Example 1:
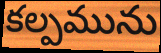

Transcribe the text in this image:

కల్పమును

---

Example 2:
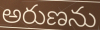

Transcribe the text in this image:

అరుణను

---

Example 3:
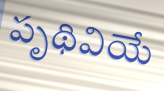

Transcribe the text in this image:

పృథివియే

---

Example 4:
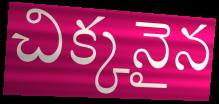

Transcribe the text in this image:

చిక్కనైన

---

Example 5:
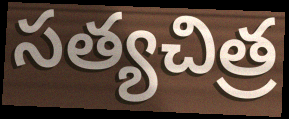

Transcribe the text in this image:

సత్యచిత్ర